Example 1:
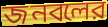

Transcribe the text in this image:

জনবলের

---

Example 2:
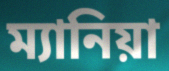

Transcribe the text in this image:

ম্যানিয়া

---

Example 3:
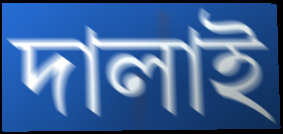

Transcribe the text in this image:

দালাই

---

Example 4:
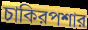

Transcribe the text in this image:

চাকিরপশার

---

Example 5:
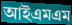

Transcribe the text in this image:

আইএমএম